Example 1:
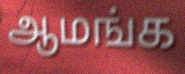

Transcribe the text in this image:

ஆமங்க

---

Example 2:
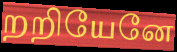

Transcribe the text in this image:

றறியேனே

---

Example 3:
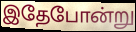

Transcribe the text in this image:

இதேபோன்று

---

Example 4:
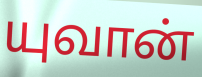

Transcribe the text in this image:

யுவான்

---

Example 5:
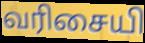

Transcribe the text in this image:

வரிசையி